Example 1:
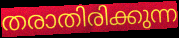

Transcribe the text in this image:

തരാതിരിക്കുന്ന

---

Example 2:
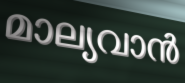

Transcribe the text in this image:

മാല്യവാൻ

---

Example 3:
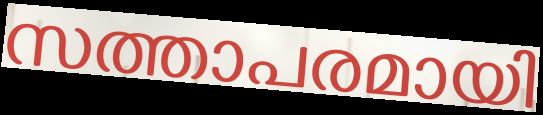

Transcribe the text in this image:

സത്താപരമായി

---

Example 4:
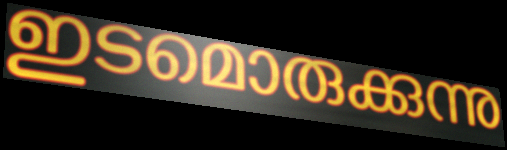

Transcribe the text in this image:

ഇടമൊരുക്കുന്നു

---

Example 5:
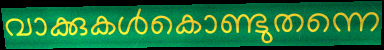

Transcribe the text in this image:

വാക്കുകൾകൊണ്ടുതന്നെ